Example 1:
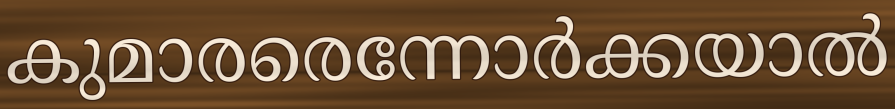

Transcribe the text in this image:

കുമാരരെന്നോർക്കയാൽ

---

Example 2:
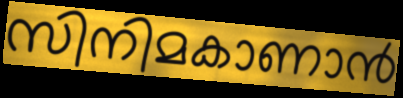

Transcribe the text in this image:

സിനിമകാണാൻ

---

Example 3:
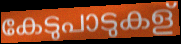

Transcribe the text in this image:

കേടുപാടുകള്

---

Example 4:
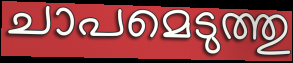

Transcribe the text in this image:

ചാപമെടുത്തു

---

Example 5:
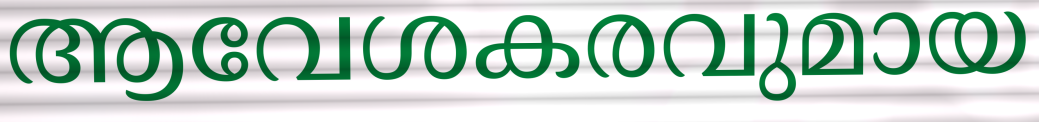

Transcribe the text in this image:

ആവേശകരവുമായ